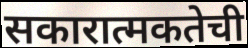
सकारात्मकतेची